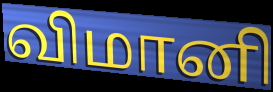
விமானி